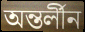
অন্তর্লীন